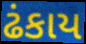
ઢંકાય